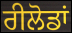
ਰੀਲੋਡਾਂ